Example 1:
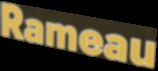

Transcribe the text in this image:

Rameau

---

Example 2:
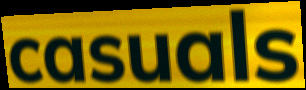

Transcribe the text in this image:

casuals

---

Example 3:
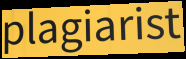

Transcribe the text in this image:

plagiarist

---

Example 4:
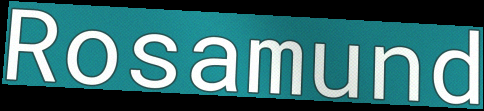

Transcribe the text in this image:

Rosamund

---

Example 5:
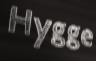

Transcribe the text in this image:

Hygge